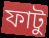
ফাটু